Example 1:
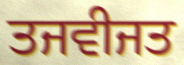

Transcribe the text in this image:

ਤਜਵੀਜਤ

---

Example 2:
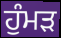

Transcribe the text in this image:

ਹੁੰਮੜ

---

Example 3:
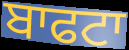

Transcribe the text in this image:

ਬਾਫਟਾ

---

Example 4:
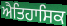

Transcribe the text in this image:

ਐਤਿਹਾਸਿਕ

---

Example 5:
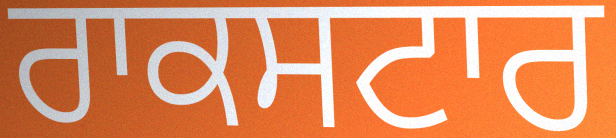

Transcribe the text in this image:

ਰਾਕਸਟਾਰ